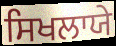
ਸਿਖਲਾਯੇ